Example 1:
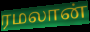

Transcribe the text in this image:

ரமலான்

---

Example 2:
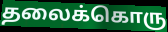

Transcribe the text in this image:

தலைக்கொரு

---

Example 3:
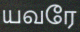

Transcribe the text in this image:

யவரே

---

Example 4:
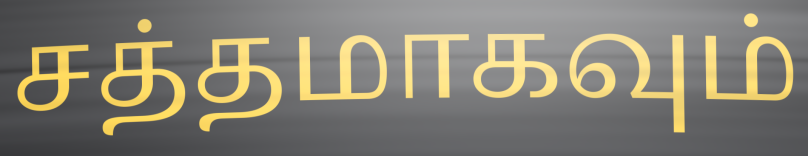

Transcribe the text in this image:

சத்தமாகவும்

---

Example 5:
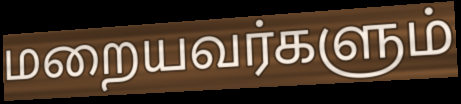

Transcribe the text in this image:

மறையவர்களும்